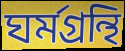
ঘর্মগ্রন্থি